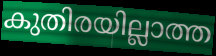
കുതിരയില്ലാത്ത